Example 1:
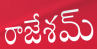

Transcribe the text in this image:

రాజేశమ్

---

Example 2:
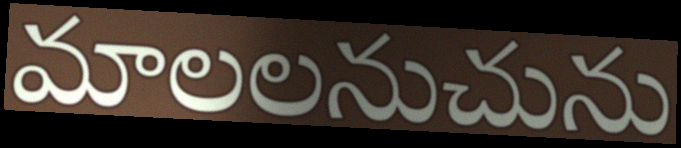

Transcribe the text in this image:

మాలలనుచును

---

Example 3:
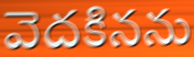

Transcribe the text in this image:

వెదకినను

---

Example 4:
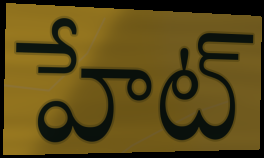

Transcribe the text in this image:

హేట్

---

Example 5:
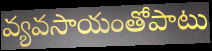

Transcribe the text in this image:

వ్యవసాయంతోపాటు